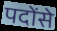
पदोंसे